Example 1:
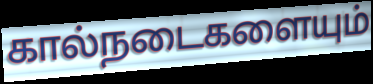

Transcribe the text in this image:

கால்நடைகளையும்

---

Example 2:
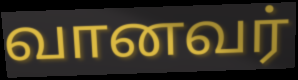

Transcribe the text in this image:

வானவர்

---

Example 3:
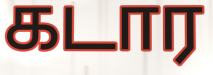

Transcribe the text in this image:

கடார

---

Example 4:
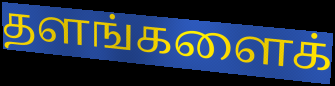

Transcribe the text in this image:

தளங்களைக்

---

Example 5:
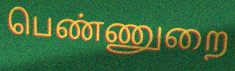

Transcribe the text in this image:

பெண்ணுறை